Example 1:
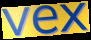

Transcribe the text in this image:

vex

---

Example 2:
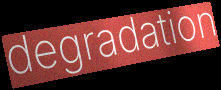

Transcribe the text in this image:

degradation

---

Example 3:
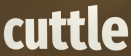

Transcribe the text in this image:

cuttle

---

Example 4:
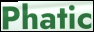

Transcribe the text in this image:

Phatic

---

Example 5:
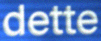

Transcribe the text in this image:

dette